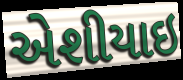
એશીયાઇ